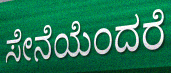
ಸೇನೆಯೆಂದರೆ